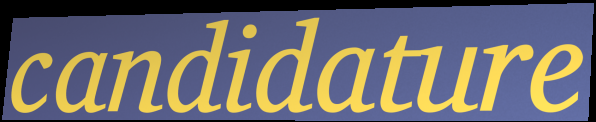
candidature